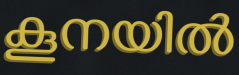
കൂനയിൽ